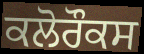
ਕਲੋਰੌਕਸ